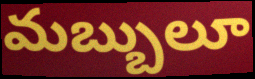
మబ్బులూ